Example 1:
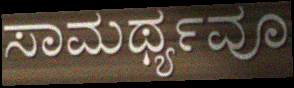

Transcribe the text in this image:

ಸಾಮರ್ಥ್ಯವೂ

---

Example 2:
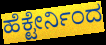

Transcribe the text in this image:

ಹೆಕ್ಟೇರ್ನಿಂದ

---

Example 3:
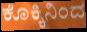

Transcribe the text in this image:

ಕೊಕ್ಕಿನಿಂದ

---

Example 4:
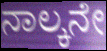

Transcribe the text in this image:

ನಾಲ್ಕನೇ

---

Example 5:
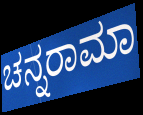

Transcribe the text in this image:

ಚನ್ನರಾಮಾ